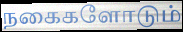
நகைகளோடும்